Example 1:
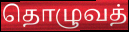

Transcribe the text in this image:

தொழுவத்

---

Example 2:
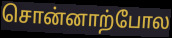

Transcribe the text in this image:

சொன்னாற்போல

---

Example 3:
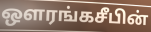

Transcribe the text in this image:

ஔரங்கசீபின்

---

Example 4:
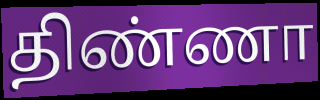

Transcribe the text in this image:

திண்ணா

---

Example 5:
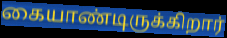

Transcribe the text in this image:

கையாண்டிருக்கிறார்